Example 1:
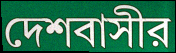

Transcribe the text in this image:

দেশবাসীর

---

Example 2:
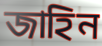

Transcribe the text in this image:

জাহিন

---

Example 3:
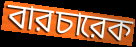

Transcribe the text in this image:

বারচারেক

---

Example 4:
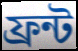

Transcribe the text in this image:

ফ্রন্ট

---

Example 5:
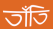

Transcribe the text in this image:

তাঁতি